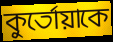
কুর্তোয়াকে